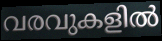
വരവുകളിൽ